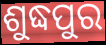
ଶୁଦ୍ଧପୁର